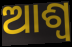
ଆଶ୍ୱ